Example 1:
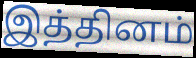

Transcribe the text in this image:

இத்தினம்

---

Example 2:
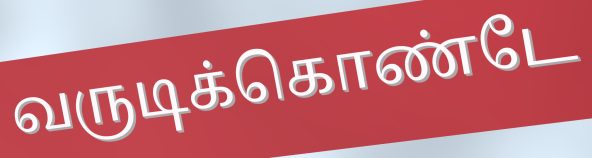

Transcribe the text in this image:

வருடிக்கொண்டே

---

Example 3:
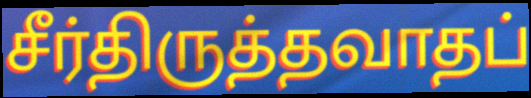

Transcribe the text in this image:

சீர்திருத்தவாதப்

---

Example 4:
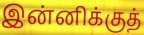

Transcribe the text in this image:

இன்னிக்குத்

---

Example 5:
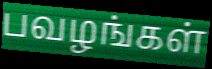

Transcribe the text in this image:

பவழங்கள்